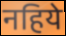
नहिये